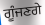
ਗੂੰਜਣਗੇ